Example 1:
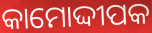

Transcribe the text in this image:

କାମୋଦ୍ଦୀପକ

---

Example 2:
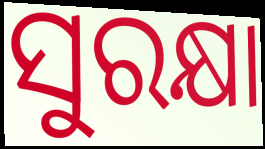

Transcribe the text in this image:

ସୁରକ୍ଷା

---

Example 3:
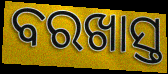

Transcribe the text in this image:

ବରଖାସ୍ତ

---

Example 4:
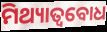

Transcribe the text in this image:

ମିଥ୍ୟାତ୍ୱବୋଧ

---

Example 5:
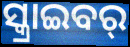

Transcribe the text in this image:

ସ୍କ୍ରାଇବର୍